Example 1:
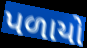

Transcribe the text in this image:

પળાયો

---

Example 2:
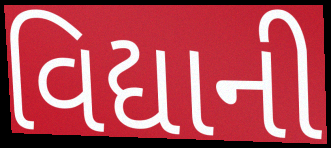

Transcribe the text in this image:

વિદ્યાની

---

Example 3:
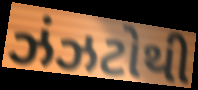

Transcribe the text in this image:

ઝંઝટોથી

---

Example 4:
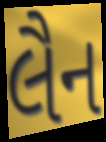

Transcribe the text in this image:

લૈન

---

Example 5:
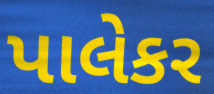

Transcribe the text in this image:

પાલેકર